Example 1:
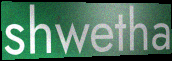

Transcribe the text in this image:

shwetha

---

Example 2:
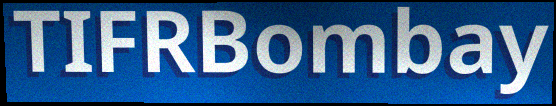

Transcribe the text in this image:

TIFRBombay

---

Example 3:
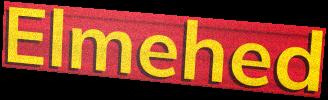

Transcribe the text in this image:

Elmehed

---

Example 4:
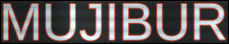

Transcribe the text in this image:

MUJIBUR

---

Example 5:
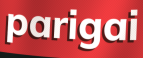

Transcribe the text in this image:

parigai